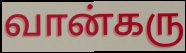
வான்கரு